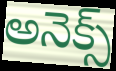
అనెక్స్